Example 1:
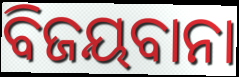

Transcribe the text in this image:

ବିଜୟବାନା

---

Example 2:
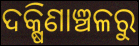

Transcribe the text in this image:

ଦକ୍ଷିଣାଞ୍ଚଳରୁ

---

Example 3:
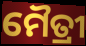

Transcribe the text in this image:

ମୈତ୍ରୀ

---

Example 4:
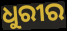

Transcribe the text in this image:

ଧୁରୀର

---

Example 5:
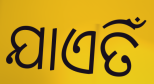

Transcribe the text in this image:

ଯାଏତିଁ